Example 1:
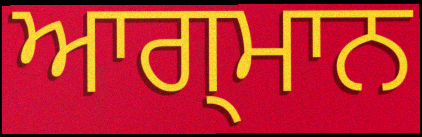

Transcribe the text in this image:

ਆਗ੍ਮਾਨ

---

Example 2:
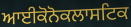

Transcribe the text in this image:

ਆਈਕੋਨੋਕਲਾਸਟਿਕ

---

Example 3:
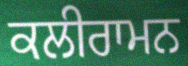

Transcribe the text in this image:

ਕਲੀਰਾਮਨ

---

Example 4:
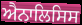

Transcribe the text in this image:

ਐਨਾਲਿਸਿਸ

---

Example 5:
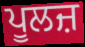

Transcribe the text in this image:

ਪੂਲਜ਼